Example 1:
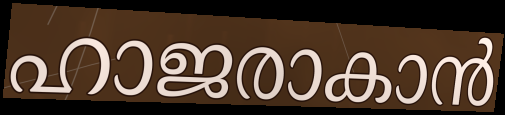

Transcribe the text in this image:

ഹാജരാകാൻ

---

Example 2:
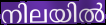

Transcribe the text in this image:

നിലയിൽ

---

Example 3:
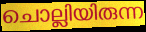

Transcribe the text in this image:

ചൊല്ലിയിരുന്ന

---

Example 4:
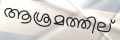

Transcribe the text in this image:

ആശ്രമത്തില്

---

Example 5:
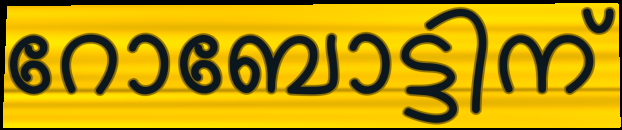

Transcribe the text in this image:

റോബോട്ടിന്